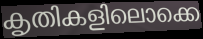
കൃതികളിലൊക്കെ